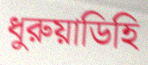
ধুরুয়াডিহি